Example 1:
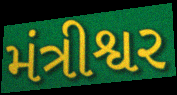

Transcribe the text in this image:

મંત્રીશ્વર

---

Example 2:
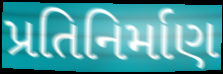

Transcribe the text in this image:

પ્રતિનિર્માણ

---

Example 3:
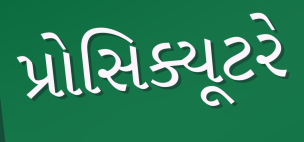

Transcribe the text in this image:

પ્રોસિક્યૂટરે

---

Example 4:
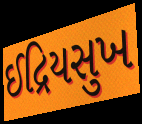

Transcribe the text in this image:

ઈદ્રિયસુખ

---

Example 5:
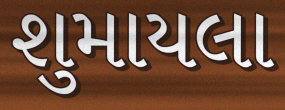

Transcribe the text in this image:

શુમાયલા